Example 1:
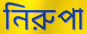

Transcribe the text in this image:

নিরুপা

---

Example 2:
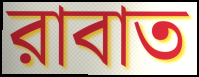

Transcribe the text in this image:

রাবাত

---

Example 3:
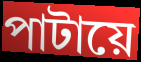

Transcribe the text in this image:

পাটায়ে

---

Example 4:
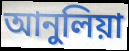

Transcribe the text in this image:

আনুলিয়া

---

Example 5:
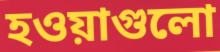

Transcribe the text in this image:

হওয়াগুলো